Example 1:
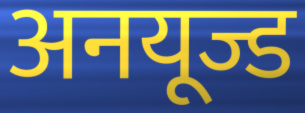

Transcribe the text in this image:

अनयूज्ड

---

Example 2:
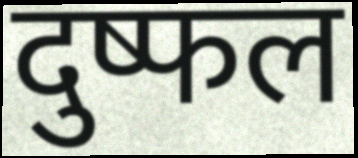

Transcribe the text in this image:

दुष्फल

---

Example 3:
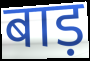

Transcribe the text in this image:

बाड़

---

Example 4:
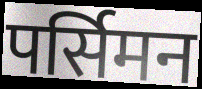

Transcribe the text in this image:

पर्सिमन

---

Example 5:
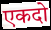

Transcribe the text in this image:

एकदो